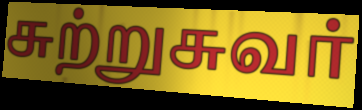
சுற்றுசுவர்